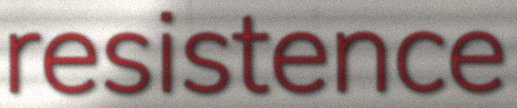
resistence